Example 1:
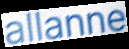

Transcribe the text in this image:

allanne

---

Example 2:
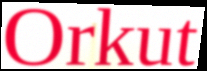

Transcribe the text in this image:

Orkut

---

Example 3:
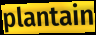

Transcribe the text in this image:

plantain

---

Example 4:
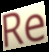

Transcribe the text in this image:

Re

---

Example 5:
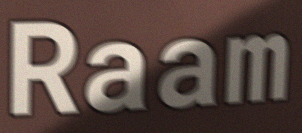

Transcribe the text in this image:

Raam